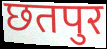
छतपुर